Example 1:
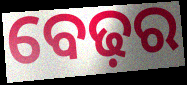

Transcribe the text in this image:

ବେଢ଼ର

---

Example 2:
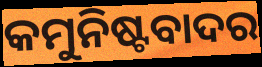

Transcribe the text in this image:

କମୁନିଷ୍ଟବାଦର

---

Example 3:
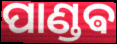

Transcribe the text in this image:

ପାଣ୍ଡଵ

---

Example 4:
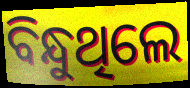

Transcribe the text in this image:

ବିନ୍ଧୁଥିଲେ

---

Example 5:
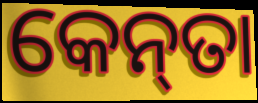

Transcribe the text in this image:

କେନ୍‌ତା